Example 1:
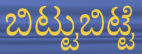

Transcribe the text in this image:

ಬಿಟ್ಟುಬಿಟ್ಟೆ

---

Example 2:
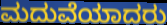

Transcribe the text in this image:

ಮದುವೆಯಾದರು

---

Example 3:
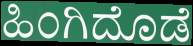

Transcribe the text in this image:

ಹಿಂಗಿದೊಡೆ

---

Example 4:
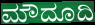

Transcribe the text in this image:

ಮೌದೂದಿ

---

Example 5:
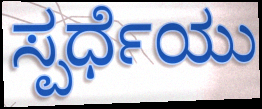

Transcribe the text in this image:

ಸ್ಪರ್ಧೆಯು